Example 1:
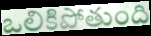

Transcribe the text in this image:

ఒలికిపోతుంది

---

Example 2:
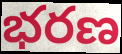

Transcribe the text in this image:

భరణ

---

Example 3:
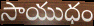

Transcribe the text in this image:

సాయుధం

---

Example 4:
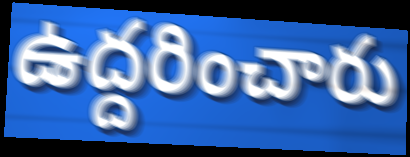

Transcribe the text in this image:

ఉద్దరించారు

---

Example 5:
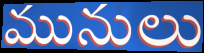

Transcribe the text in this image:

మునులు